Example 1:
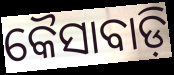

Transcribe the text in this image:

କୈସାବାଡ଼ି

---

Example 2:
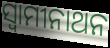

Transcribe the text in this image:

ସ୍ବାମୀନାଥନ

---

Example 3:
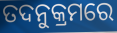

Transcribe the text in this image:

ତଦନୁକ୍ରମରେ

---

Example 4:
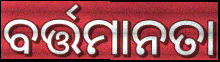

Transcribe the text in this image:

ବର୍ତ୍ତମାନତା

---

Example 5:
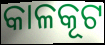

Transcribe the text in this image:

କାଳକୂଟ